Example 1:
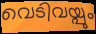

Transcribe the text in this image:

വെടിവയ്പും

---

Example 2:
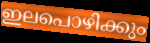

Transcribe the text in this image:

ഇലപൊഴിക്കും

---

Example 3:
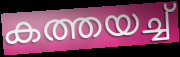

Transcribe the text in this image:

കത്തയച്ച്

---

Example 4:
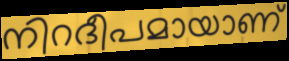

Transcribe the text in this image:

നിറദീപമായാണ്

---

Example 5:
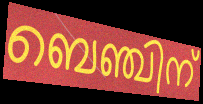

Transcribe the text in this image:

ബെഞ്ചിന്